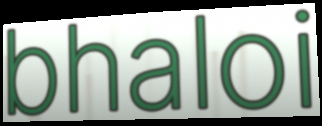
bhaloi